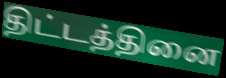
திட்டத்தினை